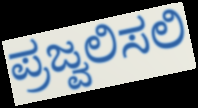
ಪ್ರಜ್ವಲಿಸಲಿ